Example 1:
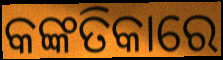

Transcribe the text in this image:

କଙ୍କତିକାରେ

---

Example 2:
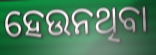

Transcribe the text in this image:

ହେଉନଥିବା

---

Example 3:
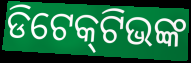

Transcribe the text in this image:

ଡିଟେକ୍‌ଟିଭଙ୍କ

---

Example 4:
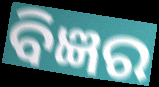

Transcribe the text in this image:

ବିଜ୍ଞର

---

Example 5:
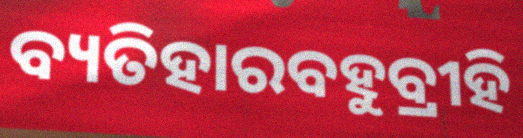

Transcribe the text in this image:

ବ୍ୟତିହାରବହୁବ୍ରୀହି